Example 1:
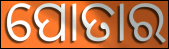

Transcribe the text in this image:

ପୋତାର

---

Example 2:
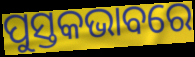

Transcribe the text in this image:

ପୁସ୍ତକଭାବରେ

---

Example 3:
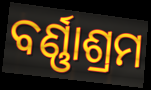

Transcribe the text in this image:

ବର୍ଣ୍ଣାଶ୍ରମ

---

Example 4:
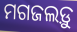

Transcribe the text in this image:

ମଗଜଲଡ଼ୁ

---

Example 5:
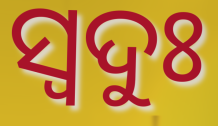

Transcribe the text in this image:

ସ୍ବଦୁଃ